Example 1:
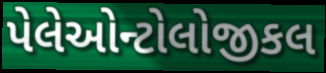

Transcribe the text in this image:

પેલેઓન્ટોલોજીકલ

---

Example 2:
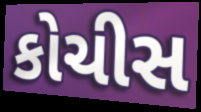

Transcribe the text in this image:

કોચીસ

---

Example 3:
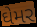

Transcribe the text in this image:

ઘેમર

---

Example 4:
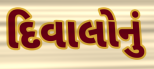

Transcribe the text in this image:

દિવાલોનું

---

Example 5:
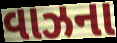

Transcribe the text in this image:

વાઝના